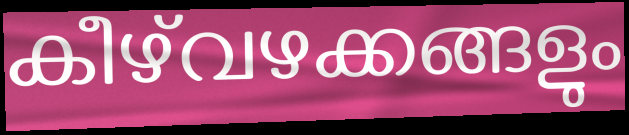
കീഴ്‌വഴക്കങ്ങളും